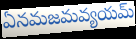
ఏనమజమవ్యయమ్